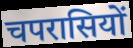
चपरासियों